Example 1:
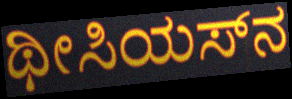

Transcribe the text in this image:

ಥೀಸಿಯಸ್‌ನ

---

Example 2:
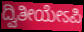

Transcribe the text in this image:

ದ್ವಿತೀಯೇಽಪಿ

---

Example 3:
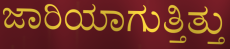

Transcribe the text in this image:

ಜಾರಿಯಾಗುತ್ತಿತ್ತು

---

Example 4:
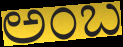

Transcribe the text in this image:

ಅಂಬ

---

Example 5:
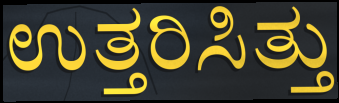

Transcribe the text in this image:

ಉತ್ತರಿಸಿತ್ತು